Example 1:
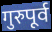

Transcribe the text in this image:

गुरुपूर्व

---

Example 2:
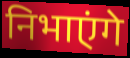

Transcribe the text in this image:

निभाएंगे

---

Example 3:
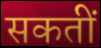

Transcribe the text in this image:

सकतीं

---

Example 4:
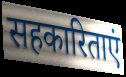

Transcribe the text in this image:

सहकारिताएं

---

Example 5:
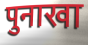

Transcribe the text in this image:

पुनाखा